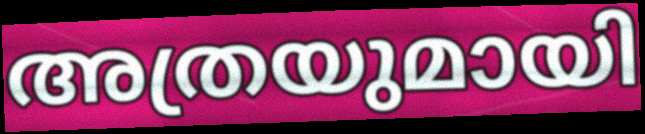
അത്രയുമായി